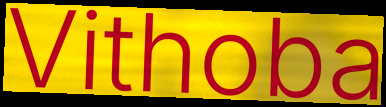
Vithoba